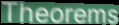
Theorems